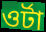
ওর্টা